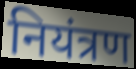
नियंत्रण